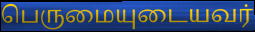
பெருமையுடையவர்